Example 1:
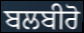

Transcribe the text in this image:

ਬਲਬੀਰੋ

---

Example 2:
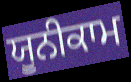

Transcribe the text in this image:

ਯੂਨੀਕਾਮ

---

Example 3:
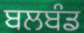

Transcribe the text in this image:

ਬਲਬੰਡ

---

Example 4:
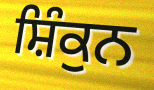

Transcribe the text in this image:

ਸ਼ਿੰਕੁਨ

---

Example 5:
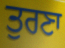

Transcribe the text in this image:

ਤੁਰਣਾ